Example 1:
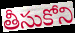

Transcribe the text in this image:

తీసుకోని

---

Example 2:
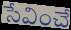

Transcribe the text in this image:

సేవించే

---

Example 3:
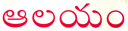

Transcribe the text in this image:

ఆలయం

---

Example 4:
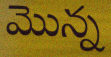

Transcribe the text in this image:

మొన్న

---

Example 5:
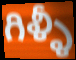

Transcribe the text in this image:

గిళ్ళీ